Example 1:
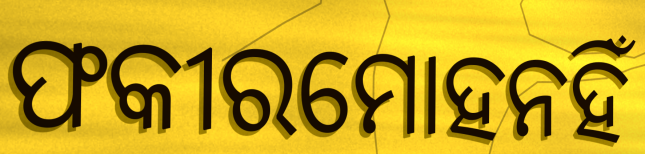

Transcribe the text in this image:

ଫକୀରମୋହନହିଁ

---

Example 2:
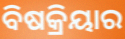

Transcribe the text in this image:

ବିଷକ୍ରିୟାର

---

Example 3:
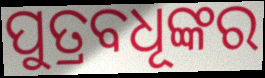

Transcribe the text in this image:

ପୁତ୍ରବଧୂଙ୍କର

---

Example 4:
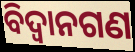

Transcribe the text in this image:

ବିଦ୍ଵାନଗଣ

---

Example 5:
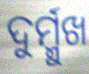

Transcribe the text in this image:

ଦୁର୍ମ୍ମୁଖ